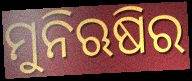
ମୁନିଋଷିର